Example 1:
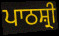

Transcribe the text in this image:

ਪਾਠਸ਼੍ਰੀ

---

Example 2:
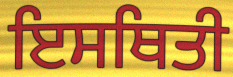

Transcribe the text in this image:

ਇਸਥਿਤੀ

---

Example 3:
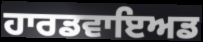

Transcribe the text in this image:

ਹਾਰਡਵਾਇਅਡ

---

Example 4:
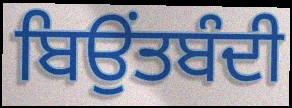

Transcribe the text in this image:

ਬਿਉਂਤਬੰਦੀ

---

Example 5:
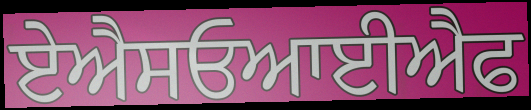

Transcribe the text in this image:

ਏਐਸਓਆਈਐਫ